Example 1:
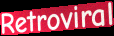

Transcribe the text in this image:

Retroviral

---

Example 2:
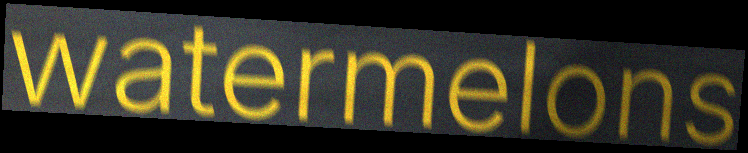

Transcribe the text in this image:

watermelons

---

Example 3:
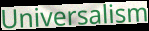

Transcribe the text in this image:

Universalism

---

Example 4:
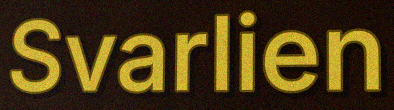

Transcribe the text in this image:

Svarlien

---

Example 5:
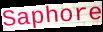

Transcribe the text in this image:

Saphore